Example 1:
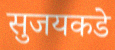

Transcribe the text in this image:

सुजयकडे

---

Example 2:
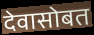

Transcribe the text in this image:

देवासोबत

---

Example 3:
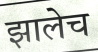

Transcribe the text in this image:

झालेच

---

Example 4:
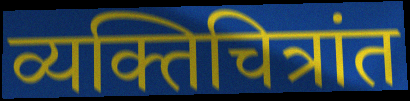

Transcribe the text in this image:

व्यक्तिचित्रांत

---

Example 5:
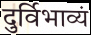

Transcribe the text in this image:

दुर्विभाव्यं